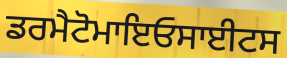
ਡਰਮੈਟੋਮਾਇਓਸਾਈਟਸ